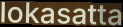
lokasatta